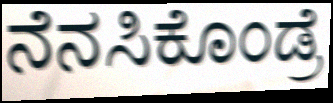
ನೆನಸಿಕೊಂಡ್ರೆ